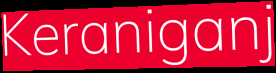
Keraniganj